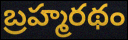
బ్రహ్మరథం